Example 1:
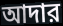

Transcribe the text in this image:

আদার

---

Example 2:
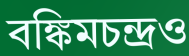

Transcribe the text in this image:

বঙ্কিমচন্দ্রও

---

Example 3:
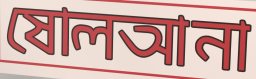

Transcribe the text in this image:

ষোলআনা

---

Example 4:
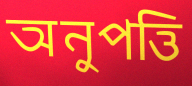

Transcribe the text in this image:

অনুপত্তি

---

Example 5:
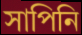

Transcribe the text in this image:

সাপিনি